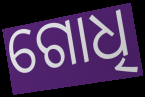
ଗୋଧି